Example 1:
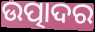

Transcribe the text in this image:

ଉତ୍ପାଦର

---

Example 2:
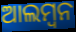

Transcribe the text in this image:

ଆଲମ୍ୱନ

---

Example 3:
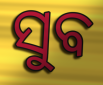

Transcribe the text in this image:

ସୁବ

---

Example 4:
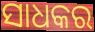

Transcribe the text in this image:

ସାଧକର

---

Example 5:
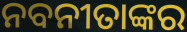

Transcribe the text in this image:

ନବନୀତାଙ୍କର